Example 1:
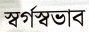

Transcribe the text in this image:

স্বর্গস্বভাব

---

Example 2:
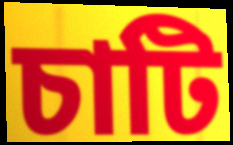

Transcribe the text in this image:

চাটি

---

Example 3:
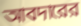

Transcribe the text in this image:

আবদারের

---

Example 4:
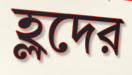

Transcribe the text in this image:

হ্লদের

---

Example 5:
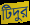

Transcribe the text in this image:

টিদুর